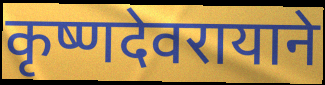
कृष्णदेवरायाने